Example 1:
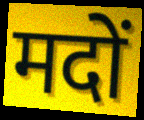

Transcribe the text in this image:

मदों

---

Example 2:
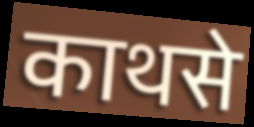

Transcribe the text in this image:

काथसे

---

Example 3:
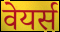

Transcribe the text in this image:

वेयर्स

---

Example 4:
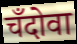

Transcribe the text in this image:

चँदोवा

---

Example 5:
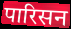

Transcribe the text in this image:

पारिसन